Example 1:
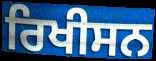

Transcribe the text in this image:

ਰਿਖੀਸਨ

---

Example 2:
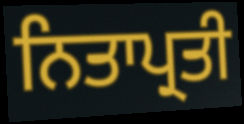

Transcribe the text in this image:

ਨਿਤਾਪ੍ਰਤੀ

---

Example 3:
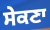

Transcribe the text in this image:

ਸੇਕਣਾ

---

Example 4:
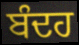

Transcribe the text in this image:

ਬੰਦਹ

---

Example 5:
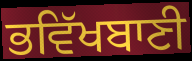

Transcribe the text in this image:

ਭਵਿੱਖਬਾਣੀ